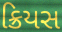
ક્રિયસ